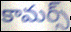
కామర్స్